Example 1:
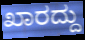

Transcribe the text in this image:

ಖಾರದ್ದು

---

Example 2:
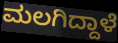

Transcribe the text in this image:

ಮಲಗಿದ್ದಾಳೆ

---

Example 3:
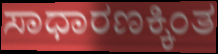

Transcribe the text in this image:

ಸಾಧಾರಣಕ್ಕಿಂತ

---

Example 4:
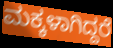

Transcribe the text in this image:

ಮಕ್ಕಳಾಗಿದ್ದರೆ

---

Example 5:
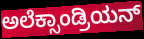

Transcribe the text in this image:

ಅಲೆಕ್ಸಾಂಡ್ರಿಯನ್